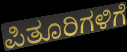
ಪಿತೂರಿಗಳಿಗೆ